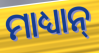
ମାଧ୍ୟାନ୍